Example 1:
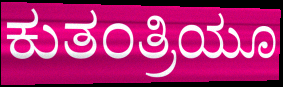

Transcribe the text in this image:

ಕುತಂತ್ರಿಯೂ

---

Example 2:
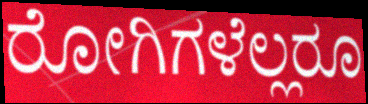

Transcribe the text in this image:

ರೋಗಿಗಳೆಲ್ಲರೂ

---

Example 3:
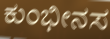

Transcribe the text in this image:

ಕುಂಭೀನಸ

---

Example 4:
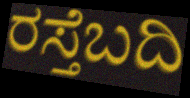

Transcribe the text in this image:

ರಸ್ತೆಬದಿ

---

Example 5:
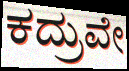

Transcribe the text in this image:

ಕದ್ರುವೇ